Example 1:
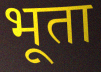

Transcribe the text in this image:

भूता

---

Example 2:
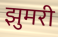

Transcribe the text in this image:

झुमरी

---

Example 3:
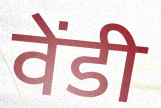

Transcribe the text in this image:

वेंडी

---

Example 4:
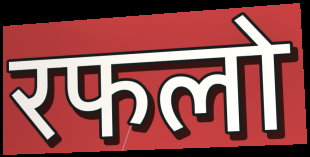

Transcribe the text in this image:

रफलो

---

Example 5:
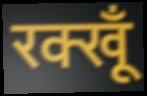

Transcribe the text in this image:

रक्खूँ